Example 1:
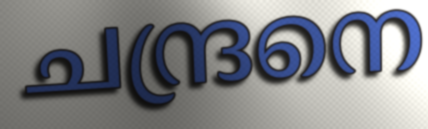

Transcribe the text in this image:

ചന്ദ്രനെ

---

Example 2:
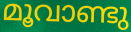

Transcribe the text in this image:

മൂവാണ്ടു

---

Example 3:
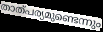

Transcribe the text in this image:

താത്പര്യമുണ്ടെന്നും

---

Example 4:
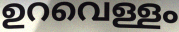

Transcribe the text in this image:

ഉറവെള്ളം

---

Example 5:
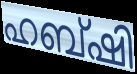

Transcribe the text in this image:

ഹബ്ഷി